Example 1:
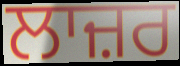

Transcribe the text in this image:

ਲਾਜ਼ਰ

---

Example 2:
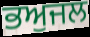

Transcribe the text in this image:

ਭਅੁਜਲ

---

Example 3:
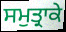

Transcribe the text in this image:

ਸਮੁਤ੍ਰਾਕੇ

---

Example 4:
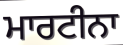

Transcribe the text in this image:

ਮਾਰਟੀਨਾ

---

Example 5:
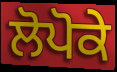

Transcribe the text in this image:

ਲੋਪੋਕੇ